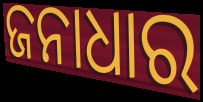
ଜନାଧାର